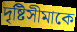
দৃষ্টিসীমাকে